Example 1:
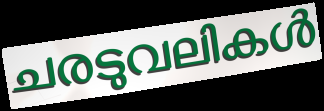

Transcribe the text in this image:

ചരടുവലികൾ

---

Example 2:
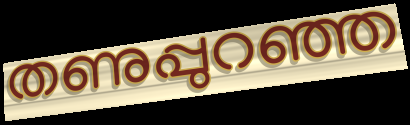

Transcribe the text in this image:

തണുപ്പുറഞ്ഞ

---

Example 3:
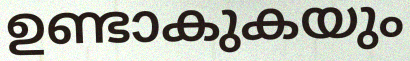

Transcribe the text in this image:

ഉണ്ടാകുകയും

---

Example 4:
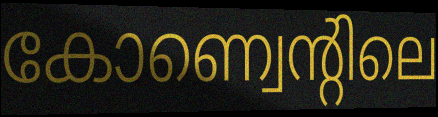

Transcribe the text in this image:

കോണ്വെന്റിലെ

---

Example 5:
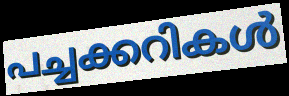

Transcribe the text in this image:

പച്ചക്കറികൾ